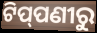
ଟିପ୍‌ପଣୀରୁ